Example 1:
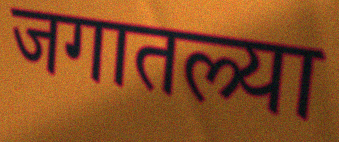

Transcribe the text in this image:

जगातल्या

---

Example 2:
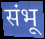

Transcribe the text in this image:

संभू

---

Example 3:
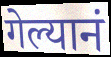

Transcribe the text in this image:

गेल्यानं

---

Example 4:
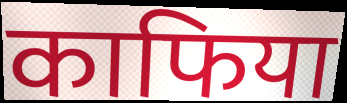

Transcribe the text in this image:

काफिया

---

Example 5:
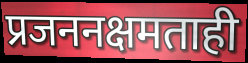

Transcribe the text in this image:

प्रजननक्षमताही